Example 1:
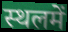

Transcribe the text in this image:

स्थलमें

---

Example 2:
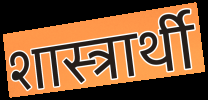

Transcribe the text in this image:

शास्त्रार्थी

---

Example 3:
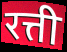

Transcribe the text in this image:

रत्ती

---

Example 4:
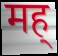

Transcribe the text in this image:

मह्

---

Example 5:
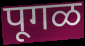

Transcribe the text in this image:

पूगळ